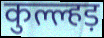
कुल्ल्हड़